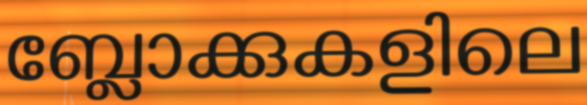
ബ്ലോക്കുകളിലെ